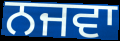
ਨਜਵਾ